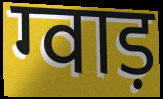
ग्वाड़